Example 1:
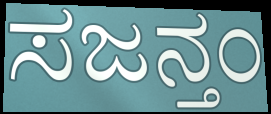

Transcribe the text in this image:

ಸಜನ್ತಂ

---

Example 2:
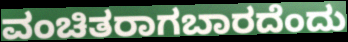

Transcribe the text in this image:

ವಂಚಿತರಾಗಬಾರದೆಂದು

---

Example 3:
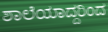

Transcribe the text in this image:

ಶಾಲೆಯಾದ್ದರಿಂದ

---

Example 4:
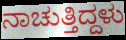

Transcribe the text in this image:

ನಾಚುತ್ತಿದ್ದಳು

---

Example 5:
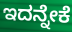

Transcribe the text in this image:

ಇದನ್ನೇಕೆ